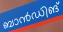
ബാൻഡിങ്